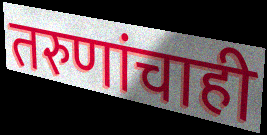
तरुणांचाही